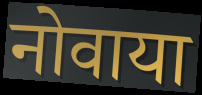
नोवाया